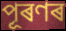
পূৰণৰ